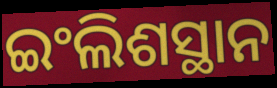
ଇଂଲିଶସ୍ଥାନ